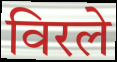
विरले